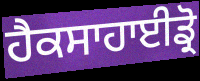
ਹੈਕਸਾਹਾਈਡ੍ਰੋ